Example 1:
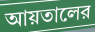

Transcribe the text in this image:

আয়তালের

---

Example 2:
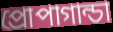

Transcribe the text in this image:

প্রোপাগান্ডা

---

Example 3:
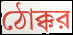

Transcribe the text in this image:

ঠোক্কর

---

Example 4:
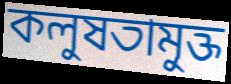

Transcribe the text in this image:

কলুষতামুক্ত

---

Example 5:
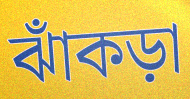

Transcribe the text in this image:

ঝাঁকড়া